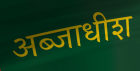
अब्जाधीश